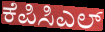
ಕೆಪಿಸಿಎಲ್